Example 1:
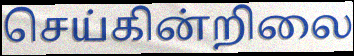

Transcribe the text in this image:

செய்கின்றிலை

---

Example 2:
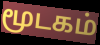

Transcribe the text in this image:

மூடகம்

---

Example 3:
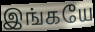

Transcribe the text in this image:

இங்கயே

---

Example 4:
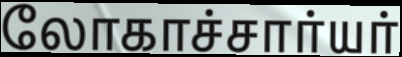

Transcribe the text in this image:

லோகாச்சார்யர்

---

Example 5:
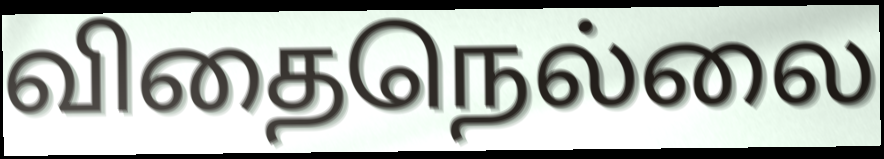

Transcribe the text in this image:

விதைநெல்லை